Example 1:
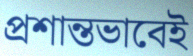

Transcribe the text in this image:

প্রশান্তভাবেই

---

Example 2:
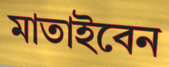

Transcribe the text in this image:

মাতাইবেন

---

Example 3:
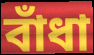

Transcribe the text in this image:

বাঁধা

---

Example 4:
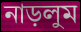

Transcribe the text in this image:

নাড়লুম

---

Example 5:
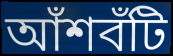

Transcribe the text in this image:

আঁশবঁটি